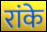
रांके